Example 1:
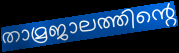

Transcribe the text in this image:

താമ്രജാലത്തിന്റെ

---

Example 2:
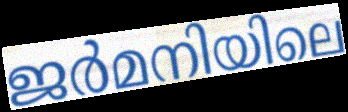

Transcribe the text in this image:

ജർമനിയിലെ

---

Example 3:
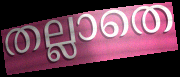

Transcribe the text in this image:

തല്ലാതെ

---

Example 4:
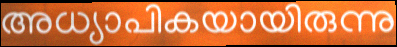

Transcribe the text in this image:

അധ്യാപികയായിരുന്നു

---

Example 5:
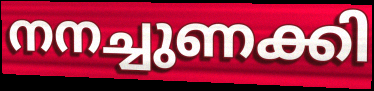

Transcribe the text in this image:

നനച്ചുണക്കി